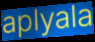
aplyala